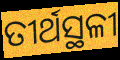
ତୀର୍ଥସ୍ଥଳୀ